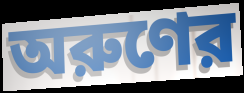
অরুণের